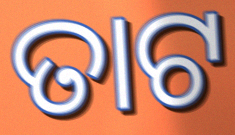
ତାଟ